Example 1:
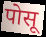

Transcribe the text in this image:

पोसू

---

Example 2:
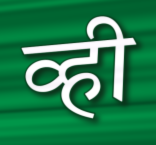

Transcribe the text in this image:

व्ही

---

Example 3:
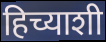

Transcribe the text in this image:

हिच्याशी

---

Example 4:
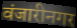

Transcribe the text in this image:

वंजारीनगर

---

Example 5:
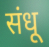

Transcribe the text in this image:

संधू